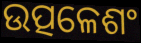
ଉତ୍ପଳେଶଂ